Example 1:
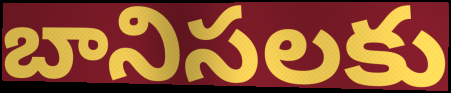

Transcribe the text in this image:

బానిసలకు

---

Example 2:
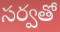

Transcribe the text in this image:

సర్వతో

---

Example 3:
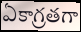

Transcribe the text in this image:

ఏకాగ్రతగా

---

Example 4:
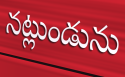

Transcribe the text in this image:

నట్లుండును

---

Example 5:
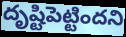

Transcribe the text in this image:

దృష్టిపెట్టిందని